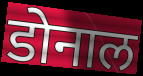
डोनाल